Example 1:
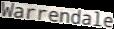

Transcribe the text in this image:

Warrendale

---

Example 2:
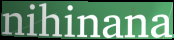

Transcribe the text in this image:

nihinana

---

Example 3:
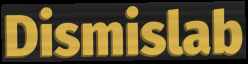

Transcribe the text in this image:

Dismislab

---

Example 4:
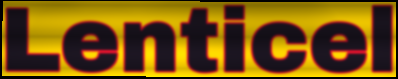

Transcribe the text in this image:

Lenticel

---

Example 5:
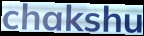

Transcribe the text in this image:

chakshu